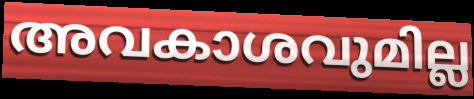
അവകാശവുമില്ല